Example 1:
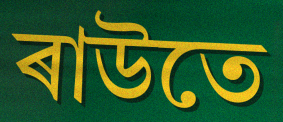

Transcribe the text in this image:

ৰাউতে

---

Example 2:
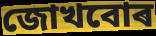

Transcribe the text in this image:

জোখবোৰ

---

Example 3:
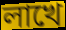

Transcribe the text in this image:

লাখে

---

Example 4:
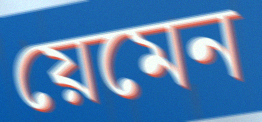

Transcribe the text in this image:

য়েমেন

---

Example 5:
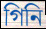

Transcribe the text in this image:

গিনি